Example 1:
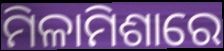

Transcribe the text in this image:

ମିଳାମିଶାରେ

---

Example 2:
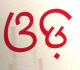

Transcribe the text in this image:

ଓଡ଼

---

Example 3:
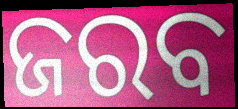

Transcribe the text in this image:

ଜରବ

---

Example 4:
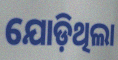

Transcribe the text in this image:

ଯୋଡ଼ିଥିଲା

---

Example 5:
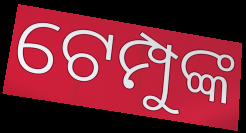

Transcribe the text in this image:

ଟେମ୍ପୁଙ୍କ